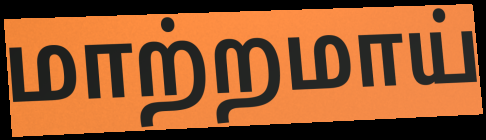
மாற்றமாய்